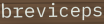
breviceps